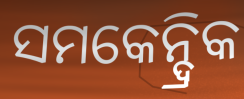
ସମକେନ୍ଦ୍ରିକ